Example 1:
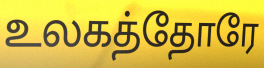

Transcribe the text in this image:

உலகத்தோரே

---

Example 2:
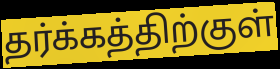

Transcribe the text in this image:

தர்க்கத்திற்குள்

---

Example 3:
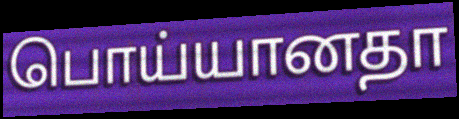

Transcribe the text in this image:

பொய்யானதா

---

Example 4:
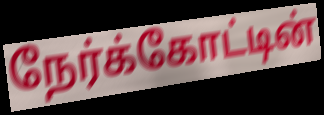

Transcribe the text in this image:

நேர்க்கோட்டின்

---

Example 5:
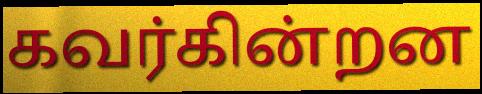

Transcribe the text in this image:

கவர்கின்றன